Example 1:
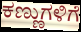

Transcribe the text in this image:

ಕಣ್ಣುಗಳಿಗೆ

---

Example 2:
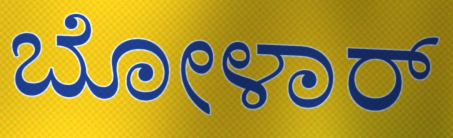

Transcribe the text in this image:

ಬೋಳಾರ್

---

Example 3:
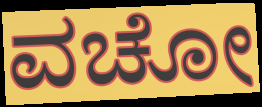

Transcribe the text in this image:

ವಚೋ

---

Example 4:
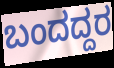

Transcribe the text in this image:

ಬಂದದ್ದರ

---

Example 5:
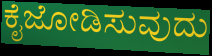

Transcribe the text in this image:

ಕೈಜೋಡಿಸುವುದು